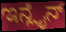
ಇನ್ಲೈನ್